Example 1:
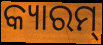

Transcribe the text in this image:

କ୍ୟାରମ୍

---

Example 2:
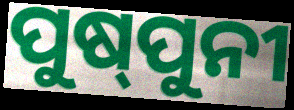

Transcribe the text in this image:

ପୁଷ୍‌ପୁନୀ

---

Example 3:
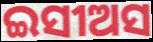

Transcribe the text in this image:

ଇସୀଅସ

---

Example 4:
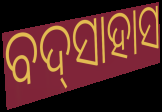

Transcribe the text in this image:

ବଦ୍‌ସାହାସ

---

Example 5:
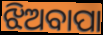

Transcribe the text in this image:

ଝିଅବାପା